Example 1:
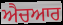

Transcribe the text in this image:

ਐਚਆਰ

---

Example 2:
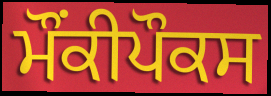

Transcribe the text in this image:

ਮੌਂਕੀਪੌਕਸ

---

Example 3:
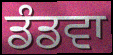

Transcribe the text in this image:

ਡੰਡਵਾ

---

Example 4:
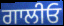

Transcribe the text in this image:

ਗਾਲੀਓ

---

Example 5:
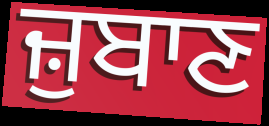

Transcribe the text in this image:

ਜ਼ੁਬਾਣ